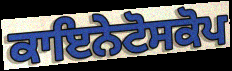
ਕਾਇਨੇਟੋਸਕੋਪ